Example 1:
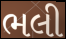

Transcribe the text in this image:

ભલી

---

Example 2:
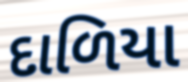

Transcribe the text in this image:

દાળિયા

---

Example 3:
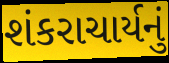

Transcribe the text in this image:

શંકરાચાર્યનું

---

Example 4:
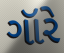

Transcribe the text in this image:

ગૉરે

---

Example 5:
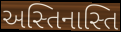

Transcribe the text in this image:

અસ્તિનાસ્તિ